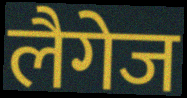
लैगेज